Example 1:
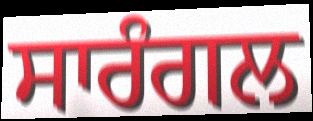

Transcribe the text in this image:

ਸਾਰੰਗਲ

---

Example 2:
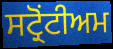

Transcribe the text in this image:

ਸਟ੍ਰੋਂਟੀਅਮ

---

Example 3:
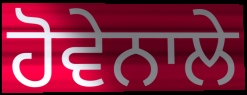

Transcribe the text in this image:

ਹੋਵੇਨਾਲੇ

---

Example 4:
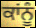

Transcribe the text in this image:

ਕਾਂਨੂੰ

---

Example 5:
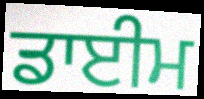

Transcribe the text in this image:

ਡਾਈਮ